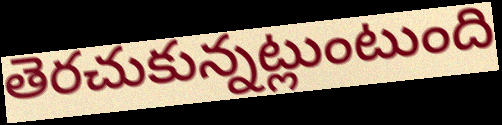
తెరచుకున్నట్లుంటుంది